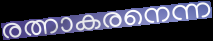
രത്നാകരനെന്ന